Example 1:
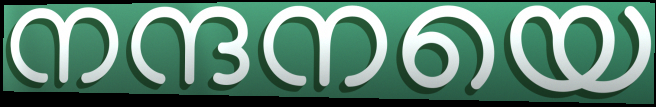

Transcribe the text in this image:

നന്ദനയെ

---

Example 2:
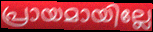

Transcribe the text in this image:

പ്രായമായില്ലേ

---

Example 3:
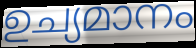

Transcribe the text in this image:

ഉച്യമാനം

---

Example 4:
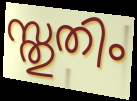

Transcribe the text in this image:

സ്തുതിം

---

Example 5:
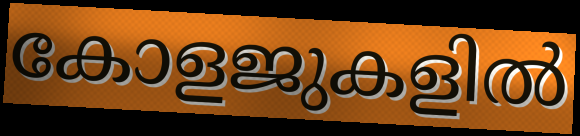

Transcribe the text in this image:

കോളജുകളിൽ